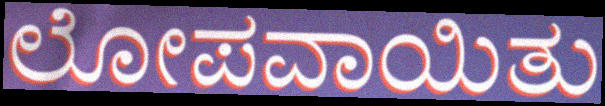
ಲೋಪವಾಯಿತು